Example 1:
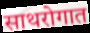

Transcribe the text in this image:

साथरोगात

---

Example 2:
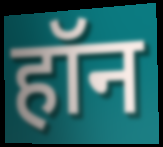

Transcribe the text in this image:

हॉन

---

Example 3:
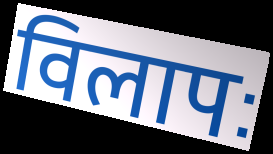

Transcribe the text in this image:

विलापः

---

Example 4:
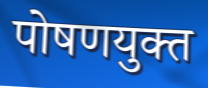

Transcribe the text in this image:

पोषणयुक्त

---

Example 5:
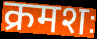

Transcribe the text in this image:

क्रमशः